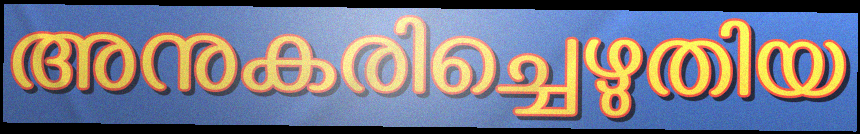
അനുകരിച്ചെഴുതിയ